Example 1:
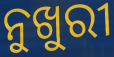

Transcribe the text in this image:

ନୁଖୁରୀ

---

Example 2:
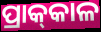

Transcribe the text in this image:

ପ୍ରାକ୍‌କାଳ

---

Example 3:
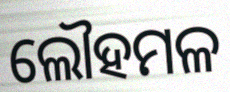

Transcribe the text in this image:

ଲୌହମଳ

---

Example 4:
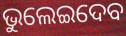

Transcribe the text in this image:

ଭୁଲେଇଦେବ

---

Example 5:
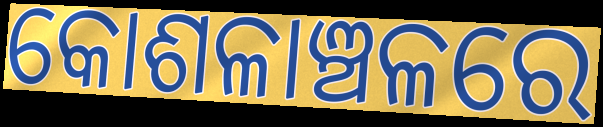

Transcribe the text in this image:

କୋଶଳାଞ୍ଚଳରେ